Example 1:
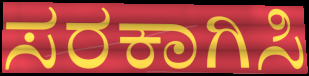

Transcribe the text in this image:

ಸರಕಾಗಿಸಿ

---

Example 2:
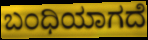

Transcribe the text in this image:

ಬಂಧಿಯಾಗದೆ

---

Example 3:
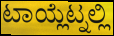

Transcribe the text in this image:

ಟಾಯ್ಲೆಟ್ನಲ್ಲಿ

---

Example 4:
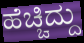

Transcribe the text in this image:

ಹೆಚ್ಚಿದ್ದು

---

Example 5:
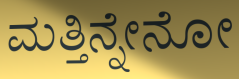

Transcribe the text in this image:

ಮತ್ತಿನ್ನೇನೋ